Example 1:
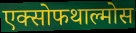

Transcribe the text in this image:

एक्सोफथाल्मोस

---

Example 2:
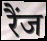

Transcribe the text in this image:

रैंज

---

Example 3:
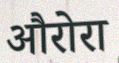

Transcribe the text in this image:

औरोरा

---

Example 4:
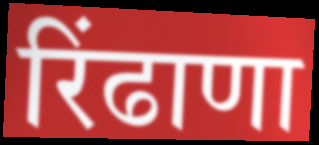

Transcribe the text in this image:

रिंढाणा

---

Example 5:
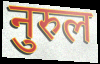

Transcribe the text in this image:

नुरुल